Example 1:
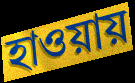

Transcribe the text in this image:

হাওয়ায়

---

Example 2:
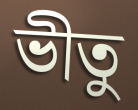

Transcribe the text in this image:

ভীতু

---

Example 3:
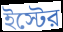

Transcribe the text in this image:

ইস্টের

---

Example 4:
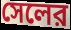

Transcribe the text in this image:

সেলের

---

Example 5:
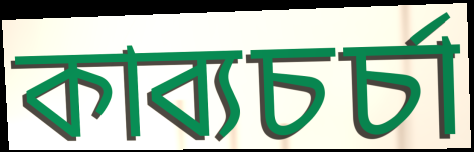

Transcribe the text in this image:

কাব্যচর্চা